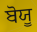
ਬੋਯੂ